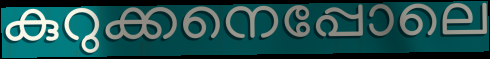
കുറുക്കനെപ്പോലെ